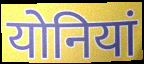
योनियां